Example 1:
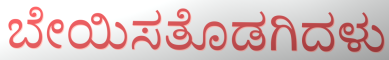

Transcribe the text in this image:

ಬೇಯಿಸತೊಡಗಿದಳು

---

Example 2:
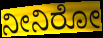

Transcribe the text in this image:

ನೀನಿರೋ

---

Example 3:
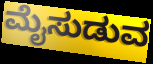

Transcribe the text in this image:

ಮೈಸುಡುವ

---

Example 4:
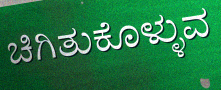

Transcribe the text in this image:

ಚಿಗಿತುಕೊಳ್ಳುವ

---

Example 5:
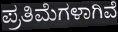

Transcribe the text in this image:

ಪ್ರತಿಮೆಗಳಾಗಿವೆ